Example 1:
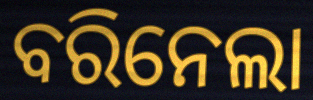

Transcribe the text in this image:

ବରିନେଲା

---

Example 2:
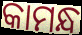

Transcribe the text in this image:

କାମନ୍ଧ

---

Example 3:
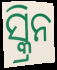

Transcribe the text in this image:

ସ୍କ୍ରିନ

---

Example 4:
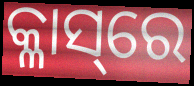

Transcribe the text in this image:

କ୍ଳାସ୍‌ରେ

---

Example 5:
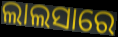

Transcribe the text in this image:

ଲାଲସାରେ